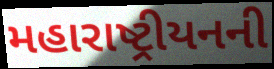
મહારાષ્ટ્રીયનની